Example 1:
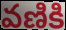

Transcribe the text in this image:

వణికి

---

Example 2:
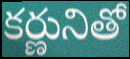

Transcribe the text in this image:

కర్ణునితో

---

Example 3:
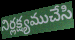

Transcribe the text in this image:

నిర్లక్ష్యముచేసి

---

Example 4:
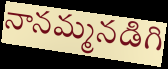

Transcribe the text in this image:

నానమ్మనడిగి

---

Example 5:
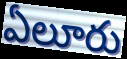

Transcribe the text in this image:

ఏలూరు